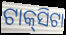
ଟାକ୍‌ସିଟା